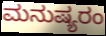
ಮನುಷ್ಯರಂ